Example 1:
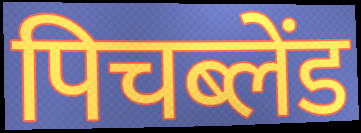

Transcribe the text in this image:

पिचब्लेंड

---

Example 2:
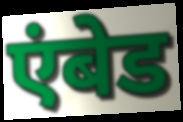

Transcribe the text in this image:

एंबेड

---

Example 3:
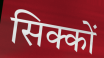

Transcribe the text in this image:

सिक्कों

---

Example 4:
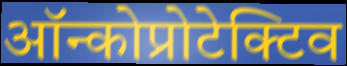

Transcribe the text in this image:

ऑन्कोप्रोटेक्टिव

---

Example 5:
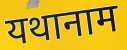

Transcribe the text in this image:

यथानाम